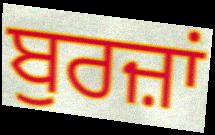
ਬੁਰਜ਼ਾਂ